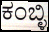
ಕಂಬ್ಳಿ